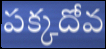
పక్కదోవ